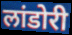
लांडोरी